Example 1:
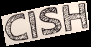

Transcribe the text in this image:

CISH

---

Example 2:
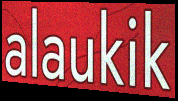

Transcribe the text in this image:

alaukik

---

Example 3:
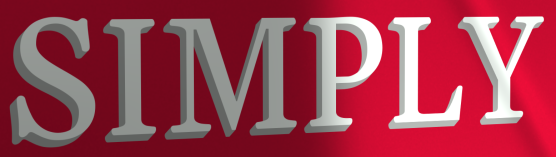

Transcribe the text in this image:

SIMPLY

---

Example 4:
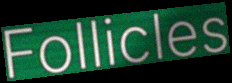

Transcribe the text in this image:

Follicles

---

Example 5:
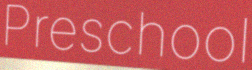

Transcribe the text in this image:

Preschool